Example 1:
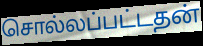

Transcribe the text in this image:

சொல்லப்பட்டதன்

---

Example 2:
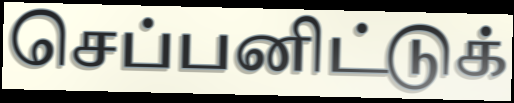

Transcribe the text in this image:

செப்பனிட்டுக்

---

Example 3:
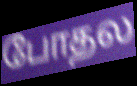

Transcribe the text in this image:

போதல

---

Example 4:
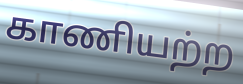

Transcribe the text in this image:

காணியற்ற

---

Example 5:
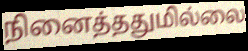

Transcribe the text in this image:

நினைத்ததுமில்லை